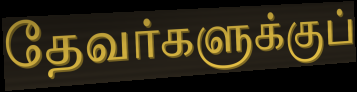
தேவர்களுக்குப்